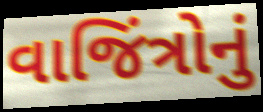
વાજિંત્રોનું